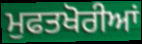
ਮੁਫਤਖੋਰੀਆਂ